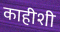
काहीशी